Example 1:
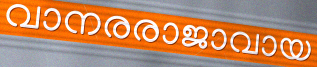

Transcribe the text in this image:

വാനരരാജാവായ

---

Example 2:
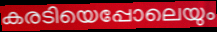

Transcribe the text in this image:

കരടിയെപ്പോലെയും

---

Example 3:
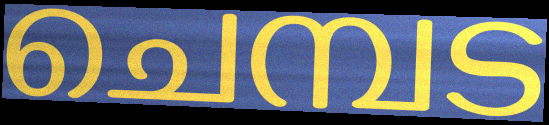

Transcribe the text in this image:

ചെമ്പട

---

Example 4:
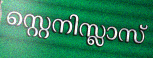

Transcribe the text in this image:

സ്റ്റെനിസ്ലാസ്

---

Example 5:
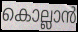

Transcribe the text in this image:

കൊല്ലാൻ